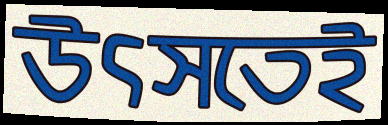
উৎসতেই